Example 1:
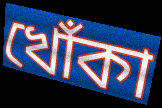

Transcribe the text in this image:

খোঁকা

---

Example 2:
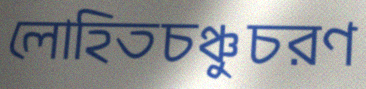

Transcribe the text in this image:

লোহিতচঞ্চুচরণ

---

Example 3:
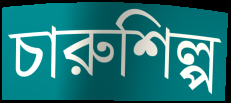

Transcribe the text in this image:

চারুশিল্প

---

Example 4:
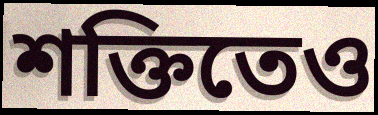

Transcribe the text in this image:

শক্তিতেও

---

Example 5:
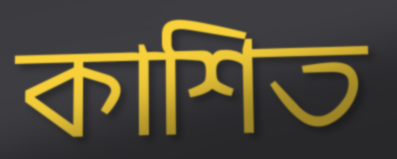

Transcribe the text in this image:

কাশিত